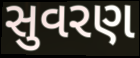
સુવરણ